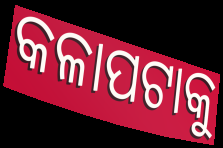
କଳାପଟାକୁ